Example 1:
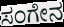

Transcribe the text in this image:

ಸಂಗೇನ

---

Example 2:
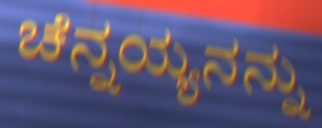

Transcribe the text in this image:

ಚೆನ್ನಯ್ಯನನ್ನು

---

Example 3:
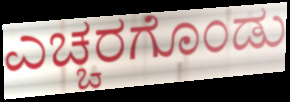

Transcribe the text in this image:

ಎಚ್ಚರಗೊಂಡು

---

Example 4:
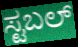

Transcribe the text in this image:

ಸ್ಟಬಲ್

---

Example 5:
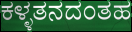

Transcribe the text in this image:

ಕಳ್ಳತನದಂತಹ